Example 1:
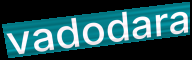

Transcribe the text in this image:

vadodara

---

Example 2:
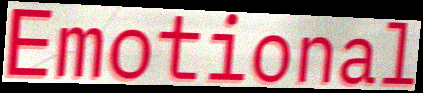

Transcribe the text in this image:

Emotional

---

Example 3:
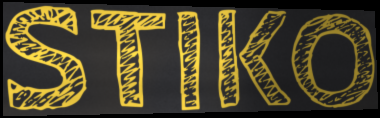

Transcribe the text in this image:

STIKO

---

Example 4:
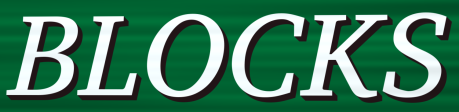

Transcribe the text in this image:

BLOCKS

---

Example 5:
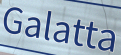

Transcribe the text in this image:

Galatta